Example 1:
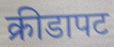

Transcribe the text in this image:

क्रीडापट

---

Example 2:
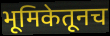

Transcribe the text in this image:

भूमिकेतूनच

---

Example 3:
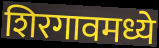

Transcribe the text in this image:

शिरगावमध्ये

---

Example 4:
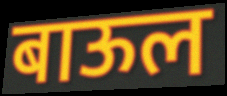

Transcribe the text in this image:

बाऊल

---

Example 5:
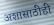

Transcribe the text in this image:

अशासाठीही